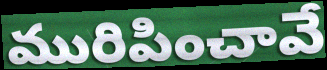
మురిపించావే